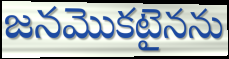
జనమొకటైనను